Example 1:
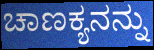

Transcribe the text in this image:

ಚಾಣಕ್ಯನನ್ನು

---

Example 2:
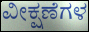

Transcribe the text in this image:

ವೀಕ್ಷಣೆಗಳ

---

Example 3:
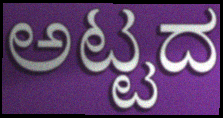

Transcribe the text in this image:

ಅಟ್ಟದ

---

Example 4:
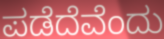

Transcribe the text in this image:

ಪಡೆದೆವೆಂದು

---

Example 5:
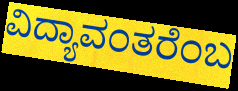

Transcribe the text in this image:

ವಿದ್ಯಾವಂತರೆಂಬ